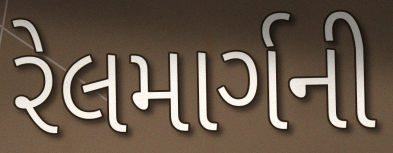
રેલમાર્ગની